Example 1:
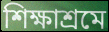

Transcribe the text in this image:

শিক্ষাশ্রমে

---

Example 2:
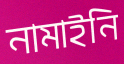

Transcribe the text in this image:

নামাইনি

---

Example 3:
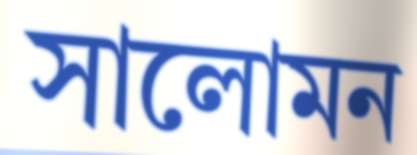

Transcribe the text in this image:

সালোমন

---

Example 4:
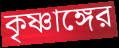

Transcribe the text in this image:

কৃষ্ণাঙ্গের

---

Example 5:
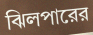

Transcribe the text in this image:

ঝিলপারের